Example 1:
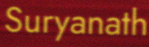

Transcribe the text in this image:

Suryanath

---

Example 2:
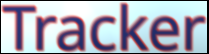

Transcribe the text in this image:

Tracker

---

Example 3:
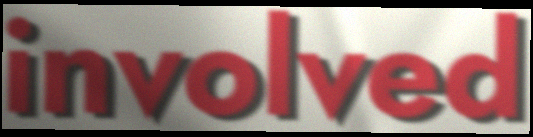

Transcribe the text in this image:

involved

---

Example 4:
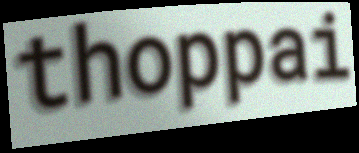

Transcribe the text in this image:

thoppai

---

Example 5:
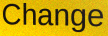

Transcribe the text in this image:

Change